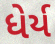
ધેર્ય